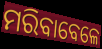
ମରିବାବେଳେ